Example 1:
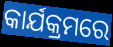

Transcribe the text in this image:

କାର୍ଯକ୍ରମରେ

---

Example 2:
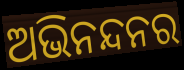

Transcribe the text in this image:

ଅଭିନନ୍ଦନର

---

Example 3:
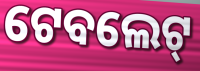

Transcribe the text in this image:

ଟେବଲେଟ୍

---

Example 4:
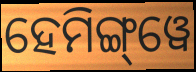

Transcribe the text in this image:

ହେମିଙ୍ଗ୍‌ୱେ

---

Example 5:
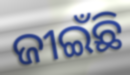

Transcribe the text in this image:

ଜୀଇଁଛି